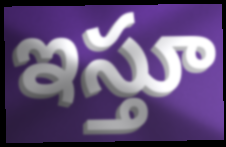
ఇస్తూ